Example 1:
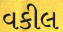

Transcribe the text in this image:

વકીલ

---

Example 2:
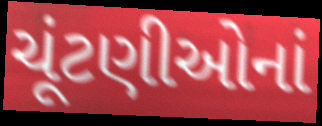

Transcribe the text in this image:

ચૂંટણીઓનાં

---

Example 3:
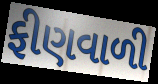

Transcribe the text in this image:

ફીણવાળી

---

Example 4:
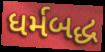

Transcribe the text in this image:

ધર્મબદ્ધ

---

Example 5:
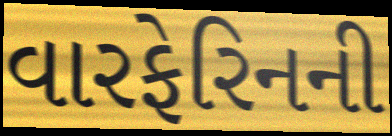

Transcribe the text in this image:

વારફેરિનની